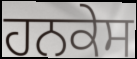
ਹਨਕੇਸ